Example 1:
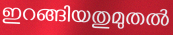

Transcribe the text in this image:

ഇറങ്ങിയതുമുതൽ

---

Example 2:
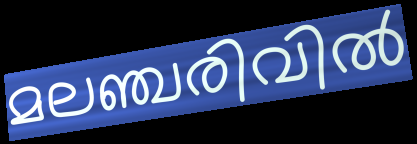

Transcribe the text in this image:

മലഞ്ചരിവിൽ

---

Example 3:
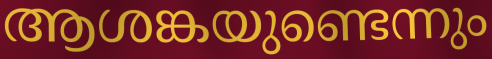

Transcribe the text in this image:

ആശങ്കയുണ്ടെന്നും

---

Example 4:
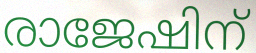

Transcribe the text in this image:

രാജേഷിന്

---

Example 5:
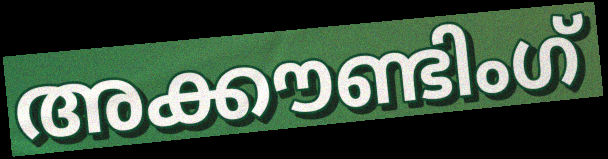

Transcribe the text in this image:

അക്കൗണ്ടിംഗ്